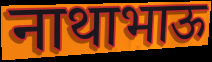
नाथाभाऊ